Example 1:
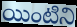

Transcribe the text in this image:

యింటిని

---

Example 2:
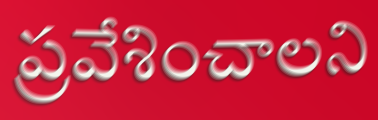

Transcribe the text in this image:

ప్రవేశించాలని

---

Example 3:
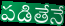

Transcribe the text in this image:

పడితేనే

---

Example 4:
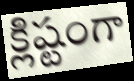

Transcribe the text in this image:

క్లిష్టంగా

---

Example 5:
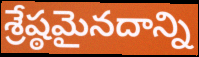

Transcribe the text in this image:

శ్రేష్ఠమైనదాన్ని